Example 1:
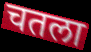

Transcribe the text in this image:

चतला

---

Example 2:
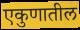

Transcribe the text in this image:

एकुणातील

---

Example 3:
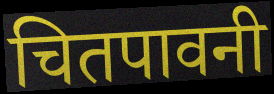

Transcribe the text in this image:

चितपावनी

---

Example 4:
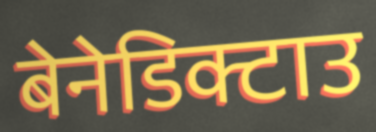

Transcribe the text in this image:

बेनेडिक्टाउ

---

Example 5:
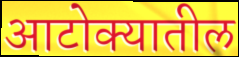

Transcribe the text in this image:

आटोक्यातील